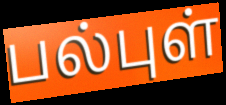
பல்புள்